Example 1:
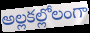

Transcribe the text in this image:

అల్లకల్లోలంగా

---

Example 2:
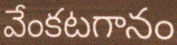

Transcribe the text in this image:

వేంకటగానం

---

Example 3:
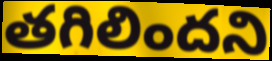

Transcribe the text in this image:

తగిలిందని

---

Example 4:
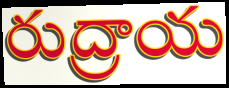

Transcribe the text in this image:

రుద్రాయ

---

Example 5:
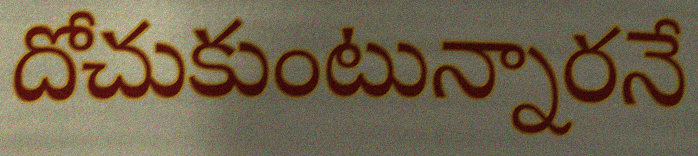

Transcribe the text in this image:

దోచుకుంటున్నారనే